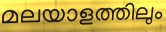
മലയാളത്തിലും